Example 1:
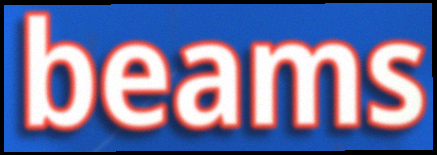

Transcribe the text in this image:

beams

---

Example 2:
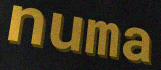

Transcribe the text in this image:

numa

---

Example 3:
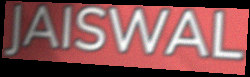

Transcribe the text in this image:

JAISWAL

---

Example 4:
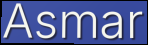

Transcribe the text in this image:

Asmar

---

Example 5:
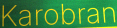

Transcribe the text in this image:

Karobran